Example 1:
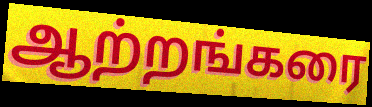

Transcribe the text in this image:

ஆற்றங்கரை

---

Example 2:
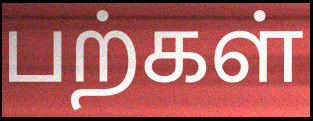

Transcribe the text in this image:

பற்கள்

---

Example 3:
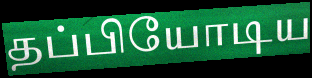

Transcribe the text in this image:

தப்பியோடிய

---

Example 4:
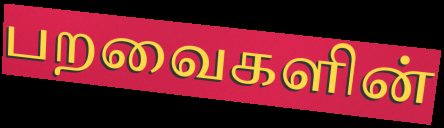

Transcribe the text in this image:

பறவைகளின்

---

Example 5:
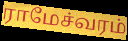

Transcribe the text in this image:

ராமேச்வரம்